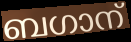
ബഗാന്